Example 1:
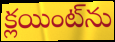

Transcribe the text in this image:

క్లయింట్‌ను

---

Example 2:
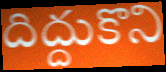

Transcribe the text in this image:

దిద్దుకొని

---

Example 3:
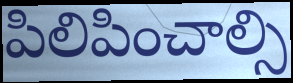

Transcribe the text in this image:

పిలిపించాల్సి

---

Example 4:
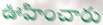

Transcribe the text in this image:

ఊహించారు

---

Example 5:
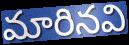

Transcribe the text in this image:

మారినవి